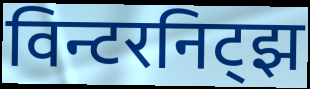
विन्टरनिट्झ